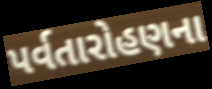
પર્વતારોહણના